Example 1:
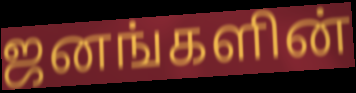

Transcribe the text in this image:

ஜனங்களின்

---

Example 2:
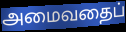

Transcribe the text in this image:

அமைவதைப்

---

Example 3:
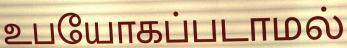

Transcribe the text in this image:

உபயோகப்படாமல்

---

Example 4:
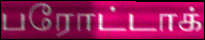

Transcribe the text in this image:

பரோட்டாக்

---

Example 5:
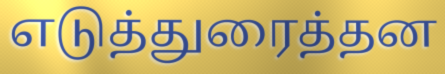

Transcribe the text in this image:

எடுத்துரைத்தன